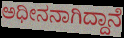
ಅಧೀನನಾಗಿದ್ದಾನೆ